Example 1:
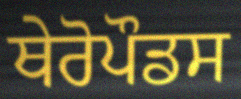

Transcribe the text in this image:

ਥੇਰੋਪੌਡਸ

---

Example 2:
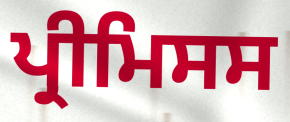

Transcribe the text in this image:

ਪ੍ਰੀਮਿਸਸ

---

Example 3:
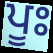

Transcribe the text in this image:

ਪੂਃ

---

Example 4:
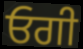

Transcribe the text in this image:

ਓਗੀ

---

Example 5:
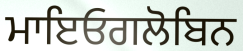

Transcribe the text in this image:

ਮਾਇਓਗਲੋਬਿਨ